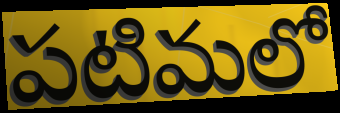
పటిమలో